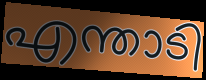
എന്താടി